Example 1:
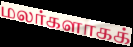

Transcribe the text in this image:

மலர்களாகக்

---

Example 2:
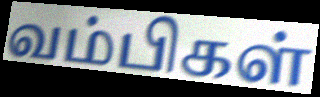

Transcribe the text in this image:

வம்பிகள்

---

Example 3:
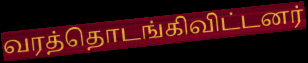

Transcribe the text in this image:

வரத்தொடங்கிவிட்டனர்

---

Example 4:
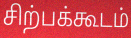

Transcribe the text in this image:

சிற்பக்கூடம்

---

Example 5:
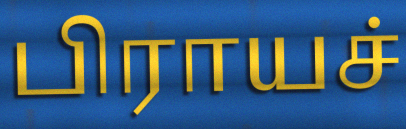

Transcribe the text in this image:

பிராயச்